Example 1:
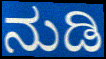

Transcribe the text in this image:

ನುಡಿ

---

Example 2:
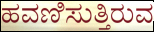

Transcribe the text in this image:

ಹವಣಿಸುತ್ತಿರುವ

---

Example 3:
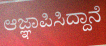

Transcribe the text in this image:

ಆಜ್ಞಾಪಿಸಿದ್ದಾನೆ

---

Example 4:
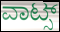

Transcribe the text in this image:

ವಾಟ್ಸ್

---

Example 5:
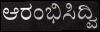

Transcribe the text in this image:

ಆರಂಭಿಸಿದ್ವಿ